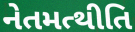
નેતમત્થીતિ